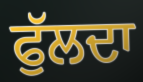
ਫੁੱਲਦਾ